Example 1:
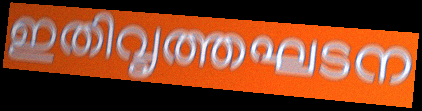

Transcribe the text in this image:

ഇതിവൃത്തഘടന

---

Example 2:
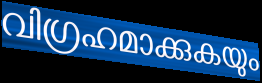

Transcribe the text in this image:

വിഗ്രഹമാക്കുകയും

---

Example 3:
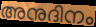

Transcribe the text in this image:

അനുദിനം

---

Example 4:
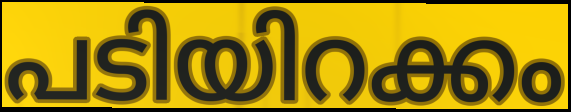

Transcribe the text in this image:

പടിയിറക്കം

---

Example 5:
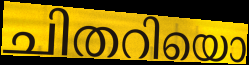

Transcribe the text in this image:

ചിതറിയൊ